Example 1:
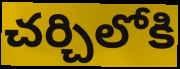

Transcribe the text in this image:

చర్చిలోకి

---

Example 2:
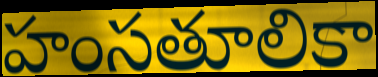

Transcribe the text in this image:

హంసతూలికా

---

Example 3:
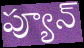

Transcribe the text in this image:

ప్యూన్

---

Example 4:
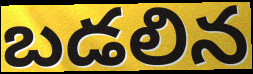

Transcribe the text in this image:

బడలిన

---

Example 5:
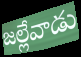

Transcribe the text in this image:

జల్లేవాడు